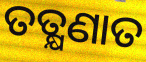
ତତ୍କ୍ଷଣାତ